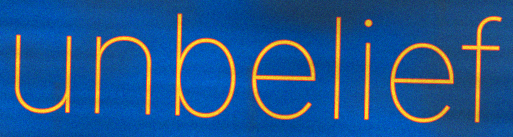
unbelief